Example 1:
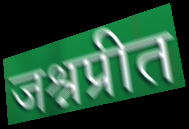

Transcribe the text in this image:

जश्नप्रीत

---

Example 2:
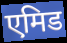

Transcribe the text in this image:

एमिड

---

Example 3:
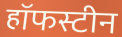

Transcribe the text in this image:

हॉफस्टीन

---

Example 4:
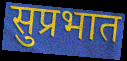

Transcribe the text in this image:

सुप्रभात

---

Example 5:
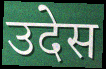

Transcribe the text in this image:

उदेस